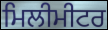
ਮਿਲੀਮੀਟਰ